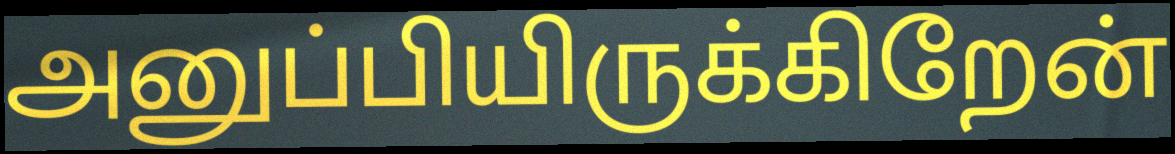
அனுப்பியிருக்கிறேன்